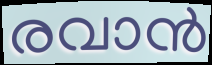
രവാൻ